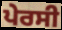
ਪੇਰਸੀ